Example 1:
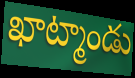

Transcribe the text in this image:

ఖాట్మాండు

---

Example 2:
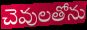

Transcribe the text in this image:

చెవులతోను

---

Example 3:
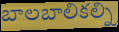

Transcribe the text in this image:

బాలబాలికల్ని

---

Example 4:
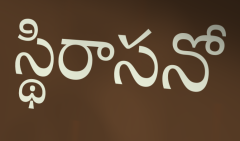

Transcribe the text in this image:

స్థిరాసనో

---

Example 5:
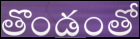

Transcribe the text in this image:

తొండంతో